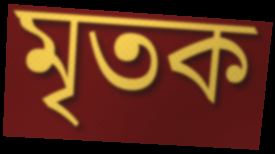
মৃতক